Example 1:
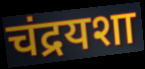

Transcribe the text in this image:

चंद्रयशा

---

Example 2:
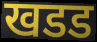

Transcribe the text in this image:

खडड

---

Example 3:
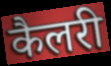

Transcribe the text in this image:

कैलरी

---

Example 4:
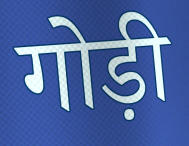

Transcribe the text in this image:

गोड़ी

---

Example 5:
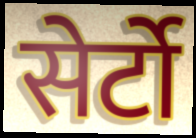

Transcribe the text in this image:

सेर्टो